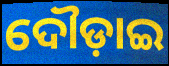
ଦୌଡ଼ାଇ